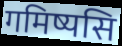
गमिष्यसि